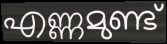
എണ്ണമുണ്ട്